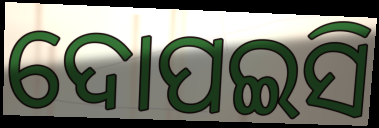
ଦୋପଇସି